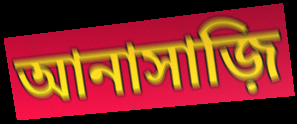
আনাসাজ়ি